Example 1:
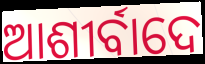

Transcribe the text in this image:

ଆଶୀର୍ବାଦେ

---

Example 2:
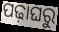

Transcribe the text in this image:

ପଢ଼ାଘରୁ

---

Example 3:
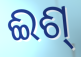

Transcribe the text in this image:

ଈଶ୍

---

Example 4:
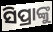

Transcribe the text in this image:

ସିପ୍ରାଙ୍କୁ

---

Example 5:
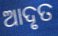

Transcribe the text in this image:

ଆଦୃତ